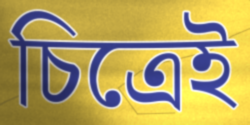
চিত্রেই